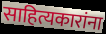
साहित्यकारांना